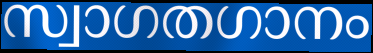
സ്വാഗതഗാനം